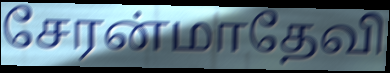
சேரன்மாதேவி